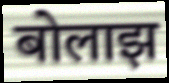
बोलाझ